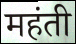
महंती